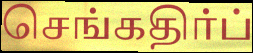
செங்கதிர்ப்